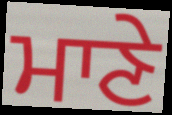
ਮਾਣੇ